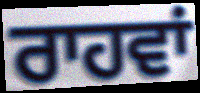
ਰਾਹਵਾਂ